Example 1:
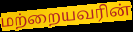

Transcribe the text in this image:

மற்றையவரின்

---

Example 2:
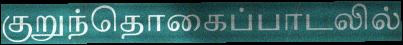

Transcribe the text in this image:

குறுந்தொகைப்பாடலில்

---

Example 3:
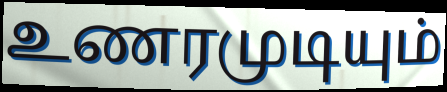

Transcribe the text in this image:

உணரமுடியும்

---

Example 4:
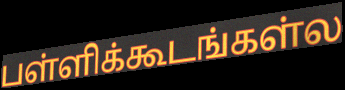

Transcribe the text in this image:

பள்ளிக்கூடங்கள்ல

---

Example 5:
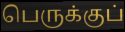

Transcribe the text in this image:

பெருக்குப்